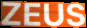
ZEUS